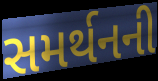
સમર્થનની